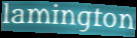
lamington